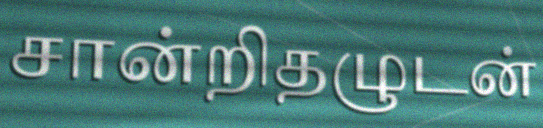
சான்றிதழுடன்